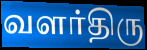
வளர்திரு